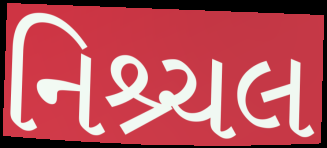
નિશ્ર્ચલ